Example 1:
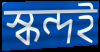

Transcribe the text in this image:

স্কন্দই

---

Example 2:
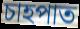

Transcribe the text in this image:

চাহপাত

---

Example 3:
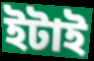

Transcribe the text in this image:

ইটাই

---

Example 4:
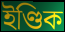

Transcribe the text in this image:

ইণ্ডিক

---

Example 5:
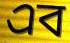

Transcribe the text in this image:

এব